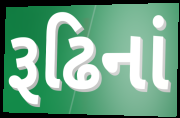
રૂઢિનાં